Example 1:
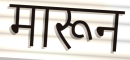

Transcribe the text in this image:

मारून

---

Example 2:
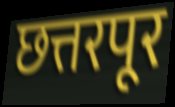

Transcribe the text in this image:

छत्तरपूर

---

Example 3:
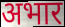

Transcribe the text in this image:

अभार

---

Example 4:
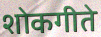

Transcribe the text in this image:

शोकगीते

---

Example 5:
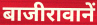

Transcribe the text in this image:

बाजीरावानें